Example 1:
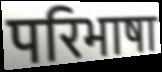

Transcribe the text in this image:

परिभाषा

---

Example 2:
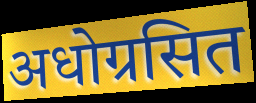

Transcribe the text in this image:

अधोग्रसित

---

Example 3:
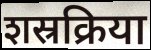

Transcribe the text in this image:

शस्रक्रिया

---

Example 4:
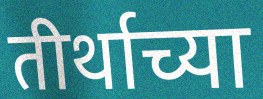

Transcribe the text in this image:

तीर्थाच्या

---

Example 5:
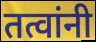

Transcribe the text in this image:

तत्वांनी